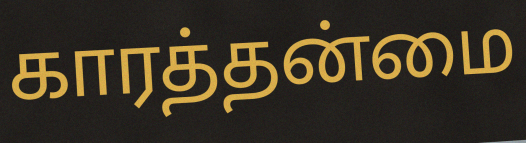
காரத்தன்மை